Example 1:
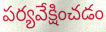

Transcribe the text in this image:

పర్యవేక్షించడం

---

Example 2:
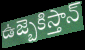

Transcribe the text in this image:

ఉజ్బెకిస్తాన్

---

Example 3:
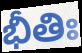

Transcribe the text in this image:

భీతిః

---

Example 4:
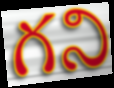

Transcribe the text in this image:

గని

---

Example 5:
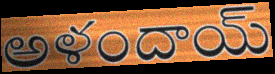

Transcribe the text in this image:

అళందాయ్